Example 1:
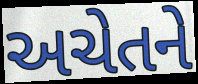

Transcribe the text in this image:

અચેતને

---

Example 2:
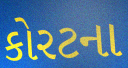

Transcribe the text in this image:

કોરટના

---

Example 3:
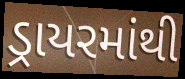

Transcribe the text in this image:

ડ્રાયરમાંથી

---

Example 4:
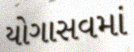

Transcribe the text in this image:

યોગાસવમાં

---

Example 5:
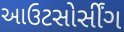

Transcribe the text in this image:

આઉટસોર્સીંગ